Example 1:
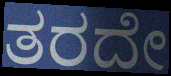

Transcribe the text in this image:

ತರದೇ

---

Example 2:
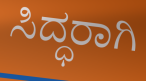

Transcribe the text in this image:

ಸಿದ್ಧರಾಗಿ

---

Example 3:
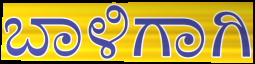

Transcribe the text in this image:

ಬಾಳಿಗಾಗಿ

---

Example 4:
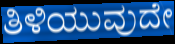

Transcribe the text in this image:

ತಿಳಿಯುವುದೇ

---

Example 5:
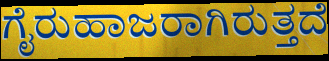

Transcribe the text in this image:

ಗೈರುಹಾಜರಾಗಿರುತ್ತದೆ